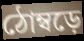
ঠোম্বড়ে